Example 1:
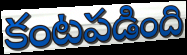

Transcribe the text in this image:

కంటపడింది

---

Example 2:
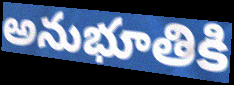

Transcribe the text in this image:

అనుభూతికి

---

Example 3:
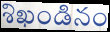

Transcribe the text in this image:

శిఖండినం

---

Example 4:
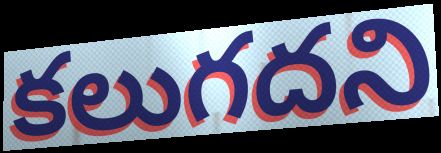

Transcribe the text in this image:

కలుగదని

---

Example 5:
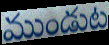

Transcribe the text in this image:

ముండుట